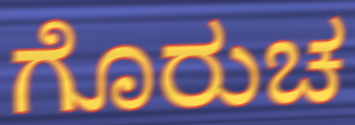
ಗೊರುಚ